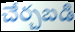
చేర్చబడి